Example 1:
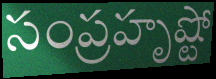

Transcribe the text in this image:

సంప్రహృష్టో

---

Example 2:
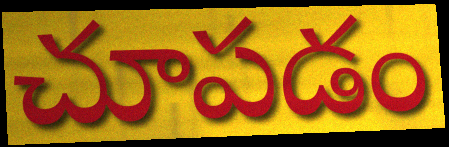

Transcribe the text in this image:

చూపడం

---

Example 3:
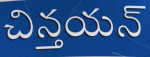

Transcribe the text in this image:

చిన్తయన్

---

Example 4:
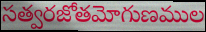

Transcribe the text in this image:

సత్వరజోతమోగుణముల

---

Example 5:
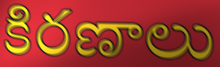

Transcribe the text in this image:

కిరణాలు